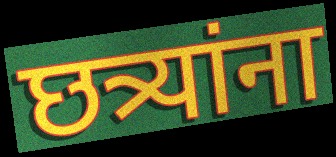
छत्र्यांना